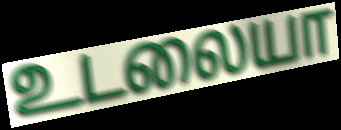
உடலையா